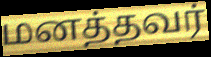
மனத்தவர்